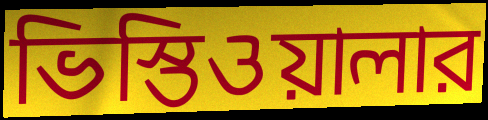
ভিস্তিওয়ালার